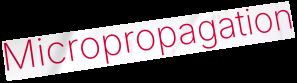
Micropropagation